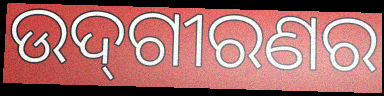
ଉଦ୍‌ଗୀରଣର